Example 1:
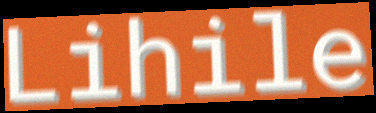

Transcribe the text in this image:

Lihile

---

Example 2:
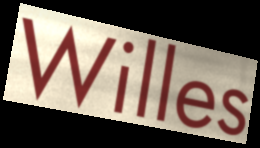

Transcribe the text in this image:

Willes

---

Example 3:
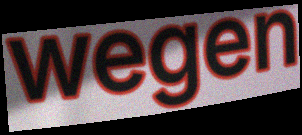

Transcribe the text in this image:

wegen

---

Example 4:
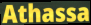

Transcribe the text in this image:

Athassa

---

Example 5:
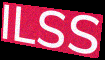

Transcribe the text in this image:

ILSS